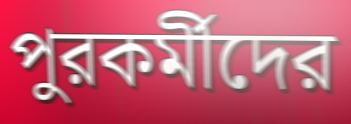
পুরকর্মীদের